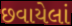
છવાયેલાં